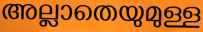
അല്ലാതെയുമുള്ള